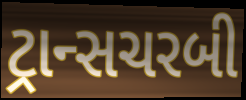
ટ્રાન્સચરબી